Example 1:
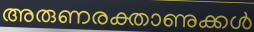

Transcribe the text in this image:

അരുണരക്താണുക്കൾ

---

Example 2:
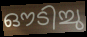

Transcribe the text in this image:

ഔടിച്ചു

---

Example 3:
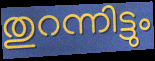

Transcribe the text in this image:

തുറന്നിട്ടും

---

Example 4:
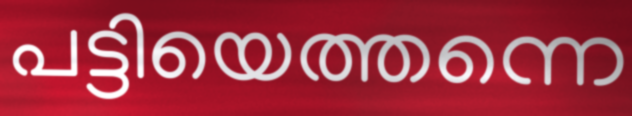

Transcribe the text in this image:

പട്ടിയെത്തന്നെ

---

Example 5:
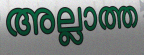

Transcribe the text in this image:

അല്ലാത്ത